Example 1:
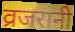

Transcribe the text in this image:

व्रजरानी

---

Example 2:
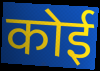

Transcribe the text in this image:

कोई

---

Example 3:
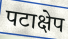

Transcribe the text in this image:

पटाक्षेप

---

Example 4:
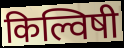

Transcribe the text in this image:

किल्विषी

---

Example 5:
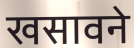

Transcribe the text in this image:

खसावने